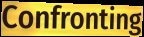
Confronting